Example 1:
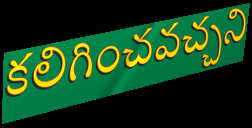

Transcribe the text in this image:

కలిగించవచ్చని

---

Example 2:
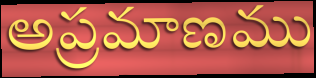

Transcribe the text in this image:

అప్రమాణము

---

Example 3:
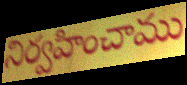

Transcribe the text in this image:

నిర్వహించాము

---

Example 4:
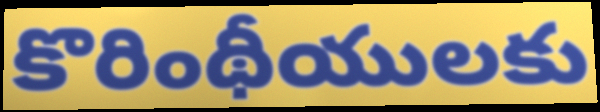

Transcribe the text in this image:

కొరింథీయులకు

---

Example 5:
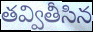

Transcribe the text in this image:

తవ్వితీసిన